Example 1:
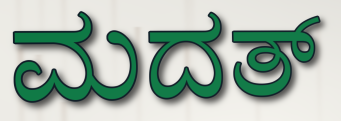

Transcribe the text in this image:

ಮದತ್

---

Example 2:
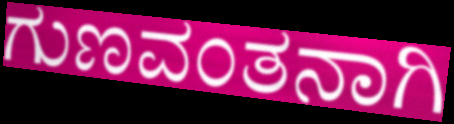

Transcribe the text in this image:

ಗುಣವಂತನಾಗಿ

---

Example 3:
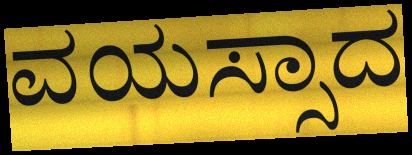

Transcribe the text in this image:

ವಯಸ್ಸಾದ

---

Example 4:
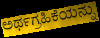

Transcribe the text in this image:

ಅರ್ಥಗ್ರಹಿಕೆಯನ್ನು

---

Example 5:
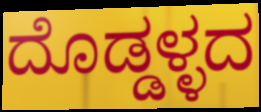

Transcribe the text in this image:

ದೊಡ್ಡಳ್ಳದ